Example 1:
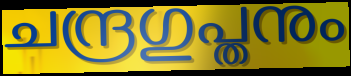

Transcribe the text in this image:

ചന്ദ്രഗുപ്തനും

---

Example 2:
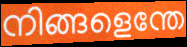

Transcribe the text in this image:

നിങ്ങളെന്തേ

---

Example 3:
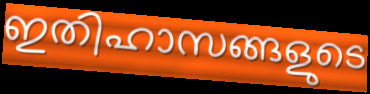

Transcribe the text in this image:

ഇതിഹാസങ്ങളുടെ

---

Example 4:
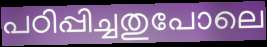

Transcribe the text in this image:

പഠിപ്പിച്ചതുപോലെ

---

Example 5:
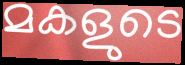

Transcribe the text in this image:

മകളുടെ